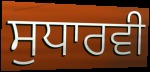
ਸੁਧਾਰਵੀ